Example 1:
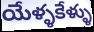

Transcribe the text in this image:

యేళ్ళకేళ్ళు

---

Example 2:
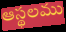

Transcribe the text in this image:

ఆస్థలము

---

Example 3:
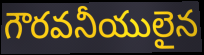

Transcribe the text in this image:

గౌరవనీయులైన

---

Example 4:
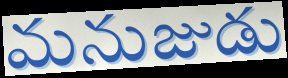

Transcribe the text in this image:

మనుజుడు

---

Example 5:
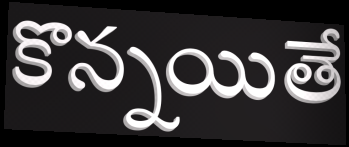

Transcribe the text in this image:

కొన్నయితే